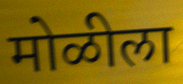
मोळीला